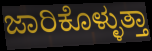
ಜಾರಿಕೊಳ್ಳುತ್ತಾ